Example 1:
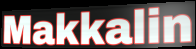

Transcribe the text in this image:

Makkalin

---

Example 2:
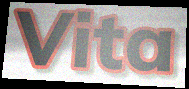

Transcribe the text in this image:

Vita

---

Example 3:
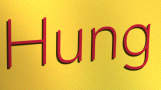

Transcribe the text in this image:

Hung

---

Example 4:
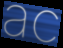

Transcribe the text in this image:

ac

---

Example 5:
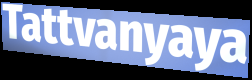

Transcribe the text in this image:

Tattvanyaya